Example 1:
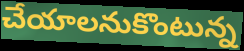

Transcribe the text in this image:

చేయాలనుకొంటున్న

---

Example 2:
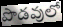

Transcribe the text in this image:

పొడవులో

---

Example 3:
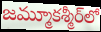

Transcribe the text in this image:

జమ్మూకశ్మీర్‌లో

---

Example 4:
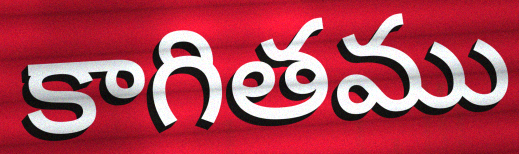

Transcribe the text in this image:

కాగితము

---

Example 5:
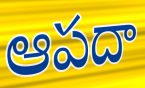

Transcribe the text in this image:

ఆపదా